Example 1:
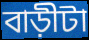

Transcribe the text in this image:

বাড়ীটা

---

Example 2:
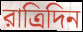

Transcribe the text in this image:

রাত্রিদিন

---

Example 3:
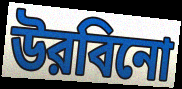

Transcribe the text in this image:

উরবিনো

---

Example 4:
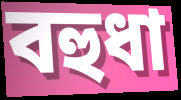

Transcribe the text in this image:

বহুধা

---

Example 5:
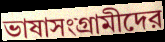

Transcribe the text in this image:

ভাষাসংগ্রামীদের